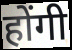
होंगी